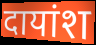
दायांश